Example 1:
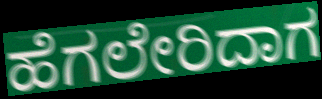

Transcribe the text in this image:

ಹೆಗಲೇರಿದಾಗ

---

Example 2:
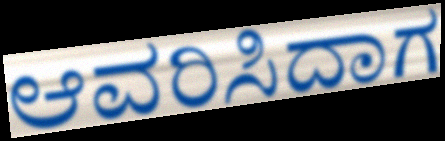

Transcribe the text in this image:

ಆವರಿಸಿದಾಗ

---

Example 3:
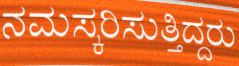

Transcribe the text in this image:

ನಮಸ್ಕರಿಸುತ್ತಿದ್ದರು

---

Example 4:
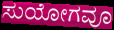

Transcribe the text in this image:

ಸುಯೋಗವೂ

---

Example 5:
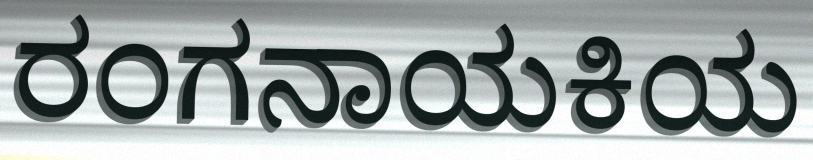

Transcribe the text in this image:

ರಂಗನಾಯಕಿಯ